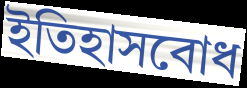
ইতিহাসবোধ